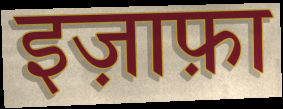
इज़ाफ़ा